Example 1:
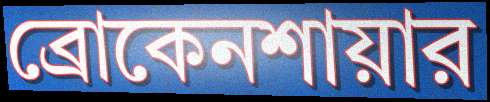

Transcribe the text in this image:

ব্রোকেনশায়ার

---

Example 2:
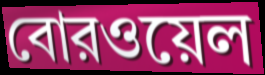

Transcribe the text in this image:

বোরওয়েল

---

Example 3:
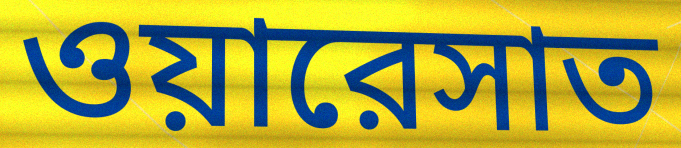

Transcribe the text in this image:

ওয়ারেসাত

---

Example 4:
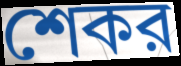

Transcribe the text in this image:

শেকর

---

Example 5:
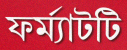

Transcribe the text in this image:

ফর্ম্যাটটি